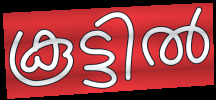
കൂട്ടിൽ